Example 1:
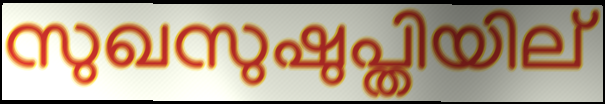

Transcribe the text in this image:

സുഖസുഷുപ്തിയില്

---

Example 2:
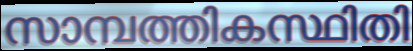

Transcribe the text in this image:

സാമ്പത്തികസ്ഥിതി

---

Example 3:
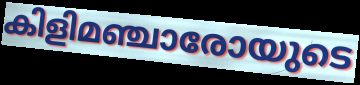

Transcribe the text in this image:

കിളിമഞ്ചാരോയുടെ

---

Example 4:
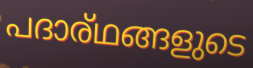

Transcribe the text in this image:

പദാര്ഥങ്ങളുടെ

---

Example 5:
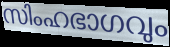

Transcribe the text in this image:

സിംഹഭാഗവും